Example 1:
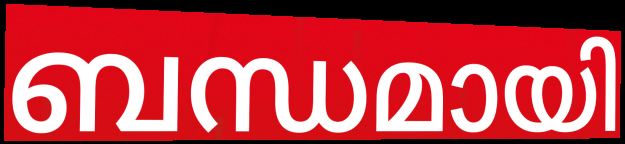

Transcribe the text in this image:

ബന്ധമായി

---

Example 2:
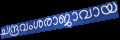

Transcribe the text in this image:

ചന്ദ്രവംശരാജാവായ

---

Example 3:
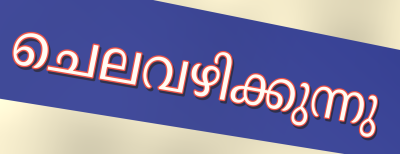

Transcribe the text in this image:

ചെലവഴിക്കുന്നു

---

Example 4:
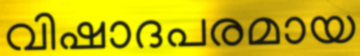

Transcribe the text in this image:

വിഷാദപരമായ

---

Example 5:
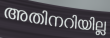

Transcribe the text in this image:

അതിനറിയില്ല